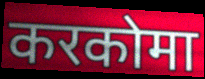
करकोमा